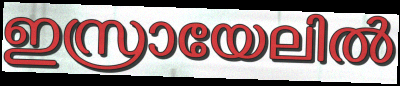
ഇസ്രായേലിൽ